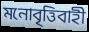
মনোবৃত্তিবাহী